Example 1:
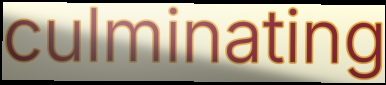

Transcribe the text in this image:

culminating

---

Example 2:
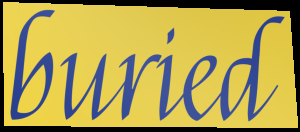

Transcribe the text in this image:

buried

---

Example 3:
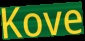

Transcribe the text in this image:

Kove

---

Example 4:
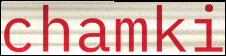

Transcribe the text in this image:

chamki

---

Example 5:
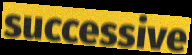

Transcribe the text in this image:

successive